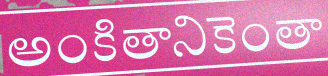
అంకితానికెంతా